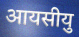
आयसीयु